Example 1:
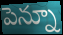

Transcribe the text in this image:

పెన్నూ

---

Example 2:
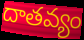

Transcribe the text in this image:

దాతవ్యం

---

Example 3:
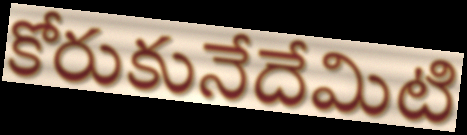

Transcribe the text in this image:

కోరుకునేదేమిటి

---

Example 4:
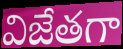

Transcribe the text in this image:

విజేతగా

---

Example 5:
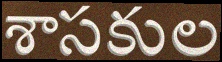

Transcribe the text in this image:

శాసకుల